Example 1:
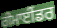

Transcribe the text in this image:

ਰੀਮਾਈਂਡਰ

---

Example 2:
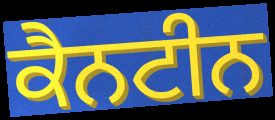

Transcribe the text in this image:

ਕੈਨਟੀਨ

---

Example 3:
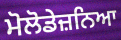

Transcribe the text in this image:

ਮੋਲੋਡੇਜ਼ਨਿਆ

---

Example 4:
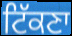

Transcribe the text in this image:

ਟਿੱਕਣਾ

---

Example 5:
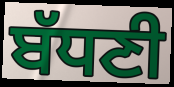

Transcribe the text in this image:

ਬੱਧਣੀ